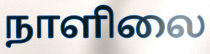
நாளிலை